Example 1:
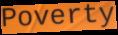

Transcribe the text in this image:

Poverty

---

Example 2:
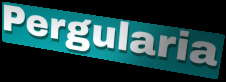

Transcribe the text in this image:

Pergularia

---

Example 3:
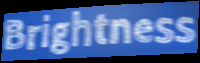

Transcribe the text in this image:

Brightness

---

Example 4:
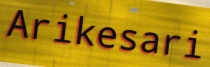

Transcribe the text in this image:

Arikesari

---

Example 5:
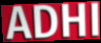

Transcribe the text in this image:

ADHI